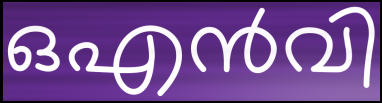
ഒഎൻവി